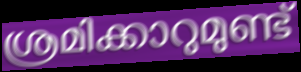
ശ്രമിക്കാറുമുണ്ട്